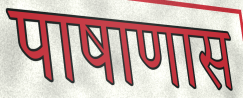
पाषाणास